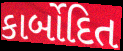
કાર્બોદિત